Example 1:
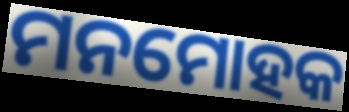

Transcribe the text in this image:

ମନମୋହକ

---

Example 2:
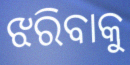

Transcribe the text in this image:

ଝରିବାକୁ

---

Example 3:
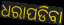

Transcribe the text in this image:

ଧରାପଡିବା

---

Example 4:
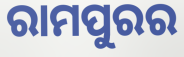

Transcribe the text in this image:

ରାମପୁରର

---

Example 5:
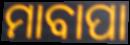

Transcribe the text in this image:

ମାବାପା